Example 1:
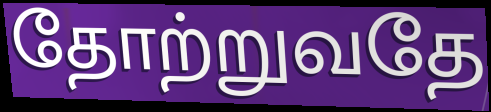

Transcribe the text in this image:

தோற்றுவதே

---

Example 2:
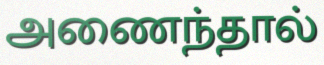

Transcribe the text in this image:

அணைந்தால்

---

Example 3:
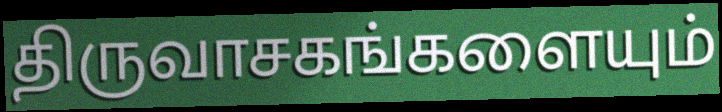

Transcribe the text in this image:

திருவாசகங்களையும்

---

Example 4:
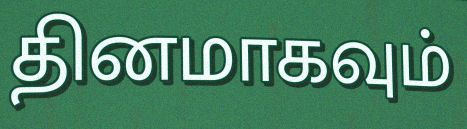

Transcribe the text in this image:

தினமாகவும்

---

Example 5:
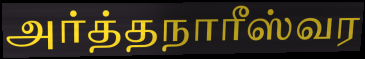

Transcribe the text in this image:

அர்த்தநாரீஸ்வர